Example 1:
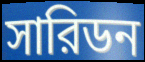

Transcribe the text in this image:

সারিডন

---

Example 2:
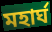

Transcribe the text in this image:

মহার্ঘ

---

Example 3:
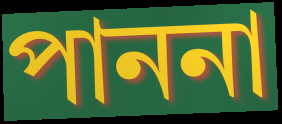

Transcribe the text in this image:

পাননা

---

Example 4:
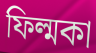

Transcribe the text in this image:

ফিল্মকা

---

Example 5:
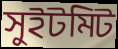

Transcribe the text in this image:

সুইটমিট